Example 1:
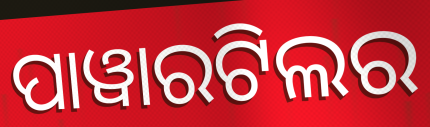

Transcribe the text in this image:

ପାୱାରଟିଲର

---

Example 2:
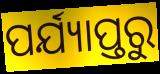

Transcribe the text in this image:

ପର୍ଯ୍ୟାପ୍ତରୁ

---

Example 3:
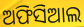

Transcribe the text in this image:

ଅଫିସିଆଲ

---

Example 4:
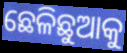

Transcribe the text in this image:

ଛେଳିଛୁଆକୁ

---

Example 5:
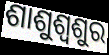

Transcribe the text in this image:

ଶାଶୁଶ୍ୱଶୁର